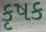
કૃષક